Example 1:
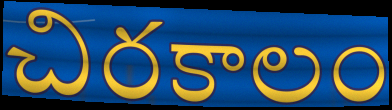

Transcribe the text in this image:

చిరకాలం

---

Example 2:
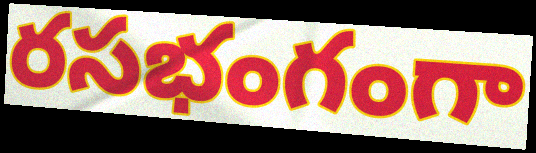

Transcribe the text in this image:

రసభంగంగా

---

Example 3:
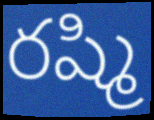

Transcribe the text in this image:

రష్మి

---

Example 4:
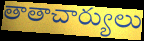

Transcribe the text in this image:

తాతాచార్యులు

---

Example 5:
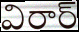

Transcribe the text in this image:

విరార్